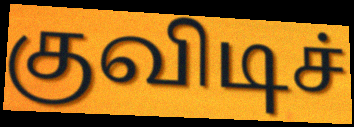
குவிடிச்